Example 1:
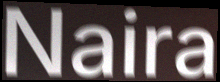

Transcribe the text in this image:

Naira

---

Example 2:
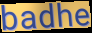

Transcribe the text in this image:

badhe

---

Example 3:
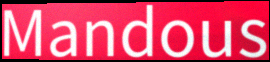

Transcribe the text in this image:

Mandous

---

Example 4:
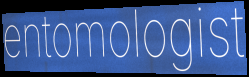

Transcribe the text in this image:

entomologist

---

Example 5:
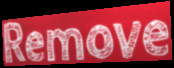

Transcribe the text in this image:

Remove